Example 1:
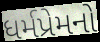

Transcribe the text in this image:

ધર્મપ્રેમનો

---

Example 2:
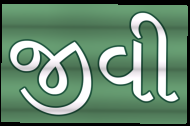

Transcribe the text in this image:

જીવી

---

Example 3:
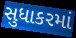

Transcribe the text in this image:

સુધાકરમાં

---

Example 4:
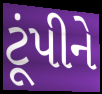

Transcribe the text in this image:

ટૂંપીને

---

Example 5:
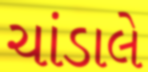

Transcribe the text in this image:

ચાંડાલે